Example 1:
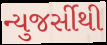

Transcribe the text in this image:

ન્યુજર્સીથી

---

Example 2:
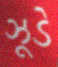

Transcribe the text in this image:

ઝૂડે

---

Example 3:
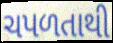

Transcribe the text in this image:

ચપળતાથી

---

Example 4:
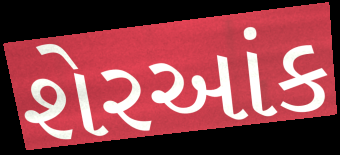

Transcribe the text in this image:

શેરઆંક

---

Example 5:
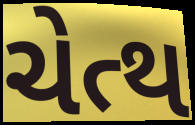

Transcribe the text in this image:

ચેત્થ